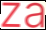
za